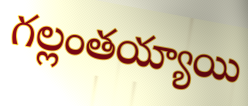
గల్లంతయ్యాయి